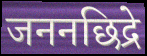
जननछिद्रे